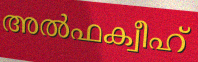
അൽഫക്വീഹ്